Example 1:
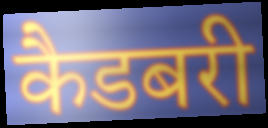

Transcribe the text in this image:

कैडबरी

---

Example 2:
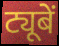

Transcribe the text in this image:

ट्यूबें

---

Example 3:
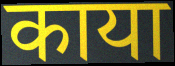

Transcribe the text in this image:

काया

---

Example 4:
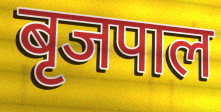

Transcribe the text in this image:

बृजपाल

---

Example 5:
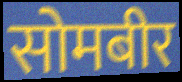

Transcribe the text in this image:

सोमबीर